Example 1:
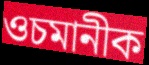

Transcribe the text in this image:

ওচমানীক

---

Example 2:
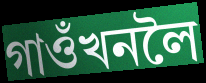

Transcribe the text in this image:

গাওঁখনলৈ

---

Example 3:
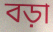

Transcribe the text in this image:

বড়া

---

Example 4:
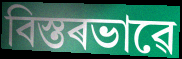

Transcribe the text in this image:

বিস্তৰভাৱে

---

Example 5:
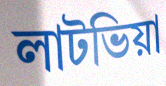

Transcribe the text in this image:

লাটভিয়া